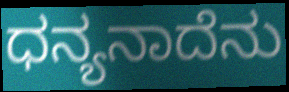
ಧನ್ಯನಾದೆನು